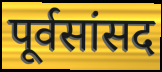
पूर्वसांसद